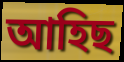
আহিছ